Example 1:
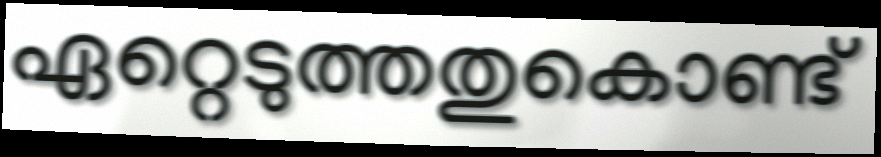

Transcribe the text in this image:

ഏറ്റെടുത്തതുകൊണ്ട്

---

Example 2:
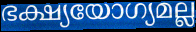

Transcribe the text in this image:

ഭക്ഷ്യയോഗ്യമല്ല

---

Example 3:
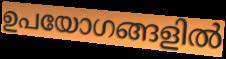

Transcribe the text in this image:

ഉപയോഗങ്ങളിൽ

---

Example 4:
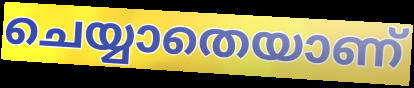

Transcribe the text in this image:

ചെയ്യാതെയാണ്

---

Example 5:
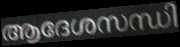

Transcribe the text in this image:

ആദേശസന്ധി